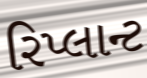
રિપ્લાન્ટ